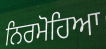
ਨਿਰਮੋਹਿਆ